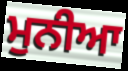
ਮੁਨੀਆ